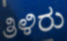
ತಿಳಿರು